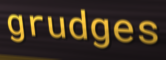
grudges